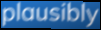
plausibly